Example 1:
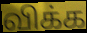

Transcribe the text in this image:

விக்க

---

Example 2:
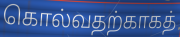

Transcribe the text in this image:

கொல்வதற்காகத்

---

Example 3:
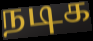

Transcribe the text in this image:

நடிக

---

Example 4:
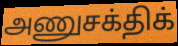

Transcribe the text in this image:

அணுசக்திக்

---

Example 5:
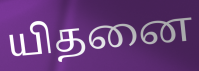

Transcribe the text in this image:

யிதனை